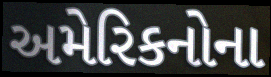
અમેરિકનોના